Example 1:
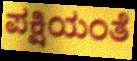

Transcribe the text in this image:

ಪಕ್ಷಿಯಂತೆ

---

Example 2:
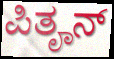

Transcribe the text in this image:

ಪಿತೄನ್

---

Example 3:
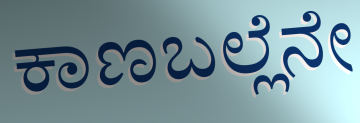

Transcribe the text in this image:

ಕಾಣಬಲ್ಲೆನೇ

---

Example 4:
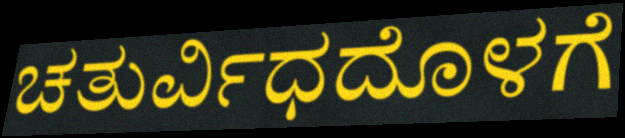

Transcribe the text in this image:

ಚತುರ್ವಿಧದೊಳಗೆ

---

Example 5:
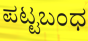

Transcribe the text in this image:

ಪಟ್ಟಬಂಧ